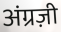
अंग्रज़ी